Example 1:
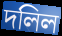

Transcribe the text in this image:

দলিল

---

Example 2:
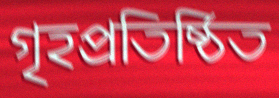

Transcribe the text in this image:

গৃহপ্রতিষ্ঠিত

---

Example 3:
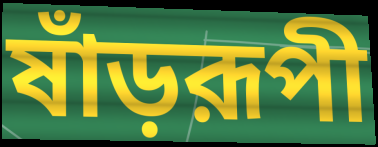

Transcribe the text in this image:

ষাঁড়রূপী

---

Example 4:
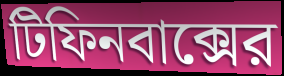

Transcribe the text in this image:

টিফিনবাক্সের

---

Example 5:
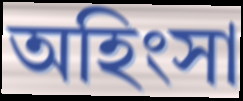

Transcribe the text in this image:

অহিংসা